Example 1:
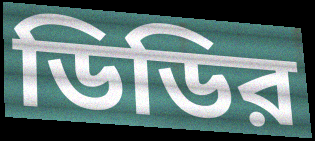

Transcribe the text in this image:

ডিডির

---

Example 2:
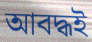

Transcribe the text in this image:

আবদ্ধই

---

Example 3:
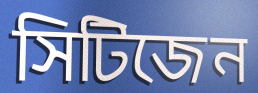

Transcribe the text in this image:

সিটিজেন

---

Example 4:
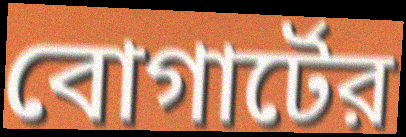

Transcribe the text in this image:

বোগার্টের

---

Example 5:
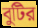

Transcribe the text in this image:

বুটির